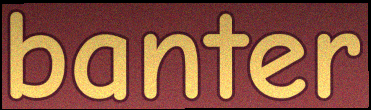
banter